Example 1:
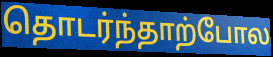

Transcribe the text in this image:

தொடர்ந்தாற்போல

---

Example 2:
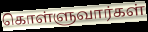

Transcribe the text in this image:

கொள்ளுவார்கள்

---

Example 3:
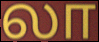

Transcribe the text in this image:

லா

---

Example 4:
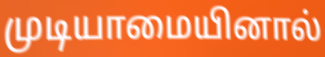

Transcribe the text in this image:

முடியாமையினால்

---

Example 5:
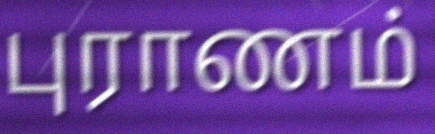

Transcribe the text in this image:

புராணம்